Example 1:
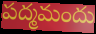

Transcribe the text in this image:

పద్మమందు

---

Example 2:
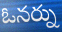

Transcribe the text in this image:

ఓనర్ను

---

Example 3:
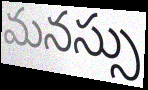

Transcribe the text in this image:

మనస్సు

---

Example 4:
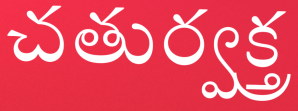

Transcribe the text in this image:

చతుర్వక్త్ర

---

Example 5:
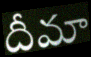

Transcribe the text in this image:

దీమా